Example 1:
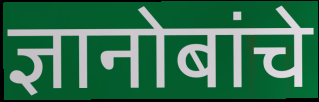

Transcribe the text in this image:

ज्ञानोबांचे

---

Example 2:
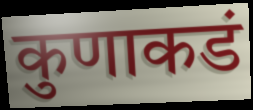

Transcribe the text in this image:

कुणाकडं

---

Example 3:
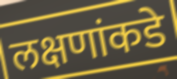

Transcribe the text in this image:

लक्षणांकडे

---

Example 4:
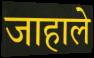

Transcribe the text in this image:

जाहाले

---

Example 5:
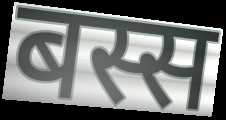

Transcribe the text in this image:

बस्स